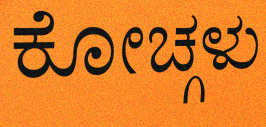
ಕೋಚ್ಗಳು